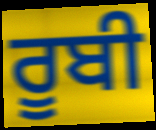
ਰੂਬੀ